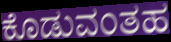
ಕೊಡುವಂತಹ